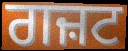
ਗਜ਼ਟ